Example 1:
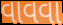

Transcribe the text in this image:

વાવવા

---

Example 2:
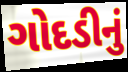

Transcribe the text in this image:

ગોદડીનું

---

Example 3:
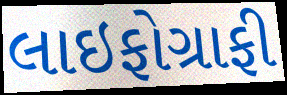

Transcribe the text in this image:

લાઇફોગ્રાફી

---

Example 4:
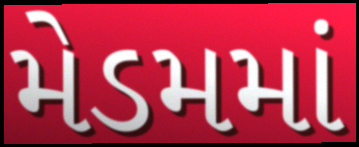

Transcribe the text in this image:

મેડમમાં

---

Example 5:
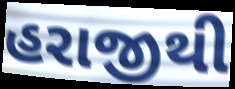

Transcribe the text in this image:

હરાજીથી